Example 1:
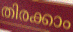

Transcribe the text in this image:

തിരക്കാം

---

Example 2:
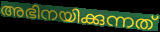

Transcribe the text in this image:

അഭിനയിക്കുന്നത്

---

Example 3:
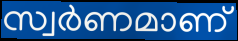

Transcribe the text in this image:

സ്വർണമാണ്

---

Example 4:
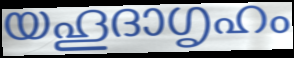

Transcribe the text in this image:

യഹൂദാഗൃഹം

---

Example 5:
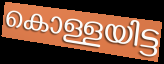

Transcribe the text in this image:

കൊള്ളയിട്ട